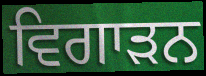
ਵਿਗਾੜਨ